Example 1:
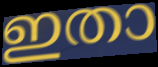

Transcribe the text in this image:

ഇതാ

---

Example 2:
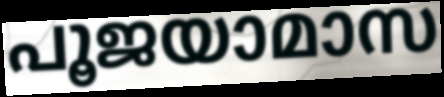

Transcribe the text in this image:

പൂജയാമാസ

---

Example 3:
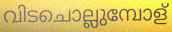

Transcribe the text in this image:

വിടചൊല്ലുമ്പോള്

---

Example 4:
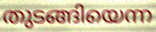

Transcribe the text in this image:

തുടങ്ങിയെന്ന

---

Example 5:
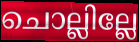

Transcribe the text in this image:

ചൊല്ലില്ലേ